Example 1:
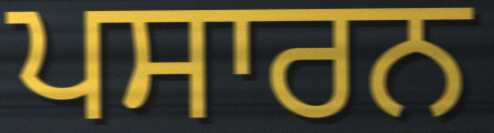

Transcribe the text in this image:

ਪਸਾਰਨ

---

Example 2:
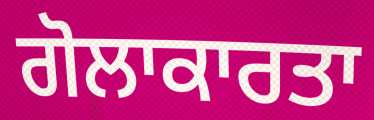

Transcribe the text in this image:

ਗੋਲਾਕਾਰਤਾ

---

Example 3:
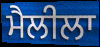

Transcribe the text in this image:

ਮੈਲੀਲਾ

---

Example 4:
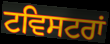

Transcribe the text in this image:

ਟਵਿਸਟਰਾਂ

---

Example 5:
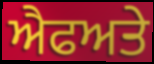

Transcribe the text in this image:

ਐਫਅਤੇ